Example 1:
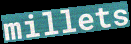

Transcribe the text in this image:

millets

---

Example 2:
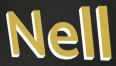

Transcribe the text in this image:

Nell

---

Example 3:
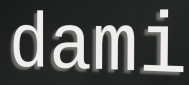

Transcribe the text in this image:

dami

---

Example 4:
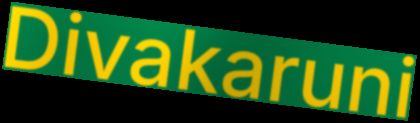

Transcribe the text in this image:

Divakaruni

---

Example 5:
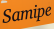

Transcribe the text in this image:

Samipe